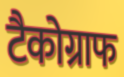
टैकोग्राफ